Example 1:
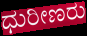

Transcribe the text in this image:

ಧುರೀಣರು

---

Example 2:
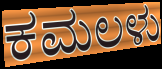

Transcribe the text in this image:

ಕಮಲಳು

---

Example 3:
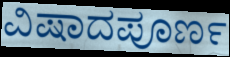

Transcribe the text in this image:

ವಿಷಾದಪೂರ್ಣ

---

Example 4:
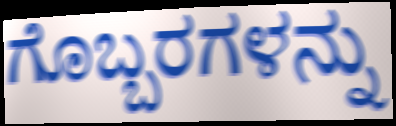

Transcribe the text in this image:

ಗೊಬ್ಬರಗಳನ್ನು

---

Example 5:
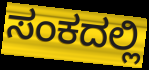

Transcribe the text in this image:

ಸಂಕದಲ್ಲಿ